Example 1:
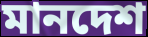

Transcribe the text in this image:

মানদেশ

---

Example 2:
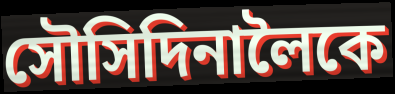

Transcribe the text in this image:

সৌসিদিনালৈকে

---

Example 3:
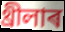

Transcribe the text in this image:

থ্ৰীলাৰ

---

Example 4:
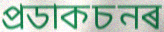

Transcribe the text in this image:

প্ৰডাকচনৰ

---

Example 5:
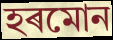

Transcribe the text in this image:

হৰমোন